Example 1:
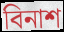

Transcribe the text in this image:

বিনাশ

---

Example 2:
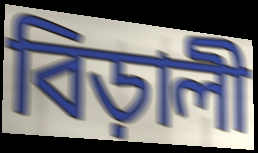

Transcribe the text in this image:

বিড়ালী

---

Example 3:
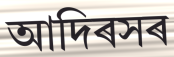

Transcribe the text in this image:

আদিৰসৰ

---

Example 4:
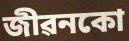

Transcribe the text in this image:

জীৱনকো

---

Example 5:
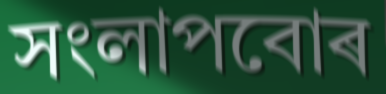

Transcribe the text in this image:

সংলাপবোৰ